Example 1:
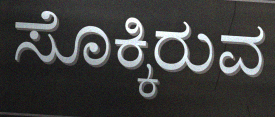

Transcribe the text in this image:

ಸೊಕ್ಕಿರುವ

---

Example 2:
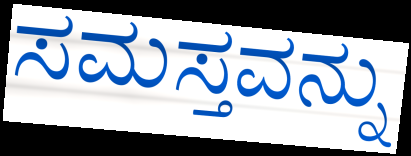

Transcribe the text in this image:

ಸಮಸ್ತವನ್ನು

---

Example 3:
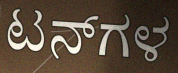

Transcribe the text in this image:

ಟನ್‌ಗಳ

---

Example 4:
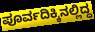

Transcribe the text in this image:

ಪೂರ್ವದಿಕ್ಕಿನಲ್ಲಿದ್ದ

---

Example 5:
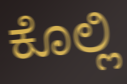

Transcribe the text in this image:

ಕೊಲ್ಲಿ